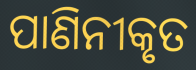
ପାଣିନୀକୃତ